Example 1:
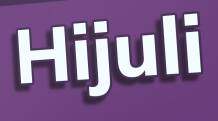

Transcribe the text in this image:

Hijuli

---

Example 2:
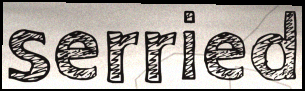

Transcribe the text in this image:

serried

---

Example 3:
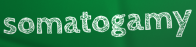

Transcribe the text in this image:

somatogamy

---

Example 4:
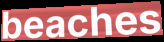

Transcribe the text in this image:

beaches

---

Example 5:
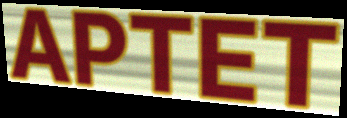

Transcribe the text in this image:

APTET